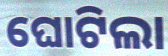
ଘୋଟିଲା